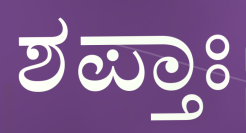
ಶಪ್ತಾಃ